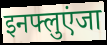
इनफ्लुएंजा